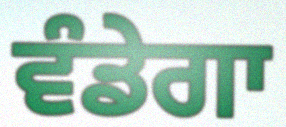
ਵੰਡੇਗਾ